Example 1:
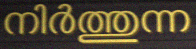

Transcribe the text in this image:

നിർത്തുന്ന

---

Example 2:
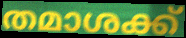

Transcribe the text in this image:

തമാശക്ക്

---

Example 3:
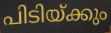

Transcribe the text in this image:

പിടിയ്ക്കും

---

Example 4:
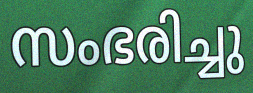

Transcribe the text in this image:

സംഭരിച്ചു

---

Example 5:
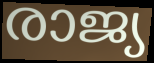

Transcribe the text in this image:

രാജ്യ